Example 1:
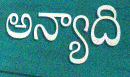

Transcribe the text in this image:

అన్యాది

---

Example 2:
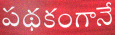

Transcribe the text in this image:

పథకంగానే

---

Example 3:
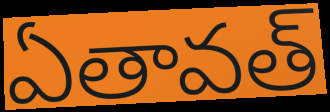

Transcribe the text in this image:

ఏతావత్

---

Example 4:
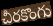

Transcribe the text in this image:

చీరకొంగు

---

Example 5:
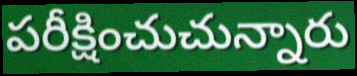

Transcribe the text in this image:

పరీక్షించుచున్నారు